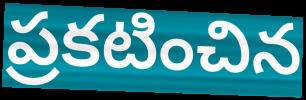
ప్రకటించిన